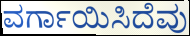
ವರ್ಗಾಯಿಸಿದೆವು